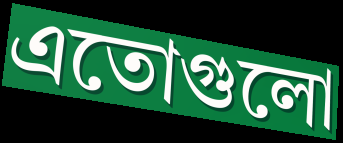
এতোগুলো